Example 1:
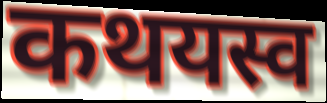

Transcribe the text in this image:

कथयस्व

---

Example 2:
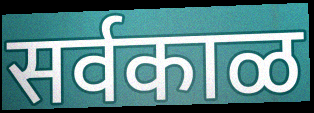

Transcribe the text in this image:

सर्वकाळ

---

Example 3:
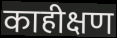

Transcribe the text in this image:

काहीक्षण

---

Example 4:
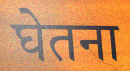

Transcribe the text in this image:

घेतना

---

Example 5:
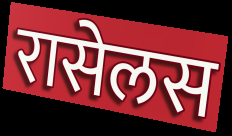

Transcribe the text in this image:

रासेलस